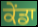
ਕੇਂਡਾ